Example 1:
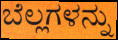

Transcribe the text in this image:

ಬೆಲ್ಲಗಳನ್ನು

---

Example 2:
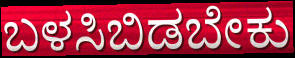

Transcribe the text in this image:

ಬಳಸಿಬಿಡಬೇಕು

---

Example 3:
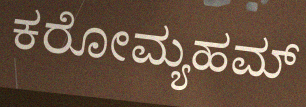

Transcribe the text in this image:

ಕರೋಮ್ಯಹಮ್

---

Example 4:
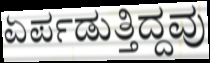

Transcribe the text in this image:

ಏರ್ಪಡುತ್ತಿದ್ದವು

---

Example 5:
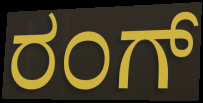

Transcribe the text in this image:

ರಂಗ್